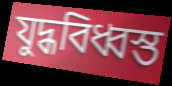
যুদ্ধবিধ্বস্ত